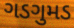
ગડગુમડ